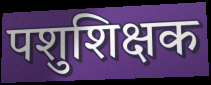
पशुशिक्षक